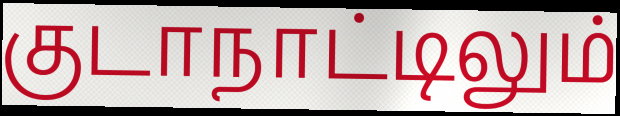
குடாநாட்டிலும்